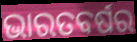
ଭାରତବର୍ଷର